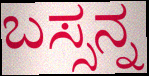
ಬಸ್ಸನ್ನ